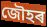
জৌহৰ